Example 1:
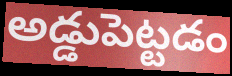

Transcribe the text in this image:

అడ్డుపెట్టడం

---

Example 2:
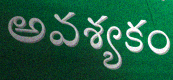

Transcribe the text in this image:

అవశ్యకం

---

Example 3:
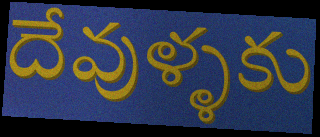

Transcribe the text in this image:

దేవుళ్ళకు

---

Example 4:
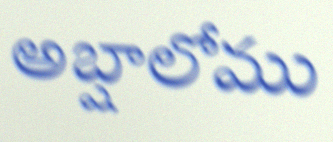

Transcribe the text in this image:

అబ్షాలోము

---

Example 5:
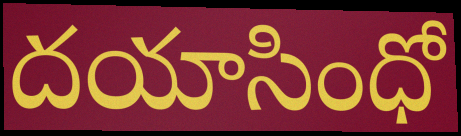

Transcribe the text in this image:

దయాసింధో